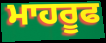
ਮਾਹਰੂਫ